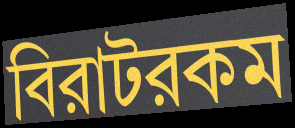
বিরাটরকম